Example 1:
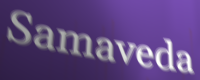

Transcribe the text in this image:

Samaveda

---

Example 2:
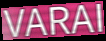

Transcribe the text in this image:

VARAI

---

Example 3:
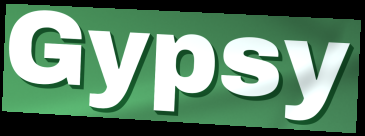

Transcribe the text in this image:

Gypsy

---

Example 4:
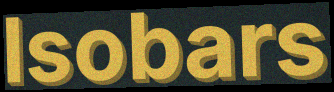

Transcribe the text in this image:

Isobars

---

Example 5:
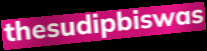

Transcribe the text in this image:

thesudipbiswas